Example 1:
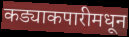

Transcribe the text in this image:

कड्याकपारीमधून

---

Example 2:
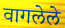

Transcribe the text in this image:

वागलेले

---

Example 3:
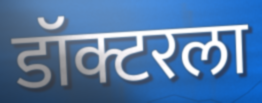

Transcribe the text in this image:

डॉक्टरला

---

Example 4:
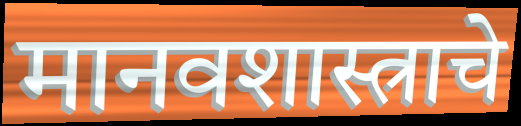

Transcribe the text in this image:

मानवशास्त्राचे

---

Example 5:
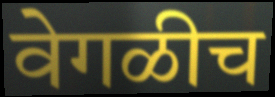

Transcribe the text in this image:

वेगळीच